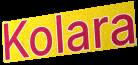
Kolara